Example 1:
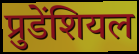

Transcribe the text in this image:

प्रुडेंशियल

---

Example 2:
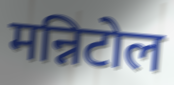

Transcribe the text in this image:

मन्निटोल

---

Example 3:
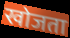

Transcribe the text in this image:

खोजता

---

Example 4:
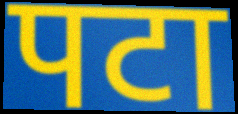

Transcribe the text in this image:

पटा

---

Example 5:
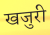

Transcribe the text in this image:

खजुरी